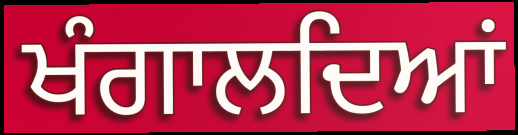
ਖੰਗਾਲਦਿਆਂ